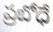
ప్రబోధే